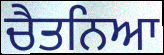
ਚੈਤਨਿਆ